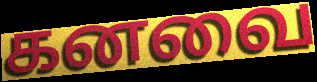
கனவை